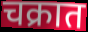
चक्रात